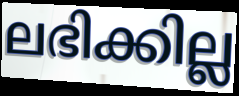
ലഭിക്കില്ല